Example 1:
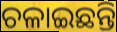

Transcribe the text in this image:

ଚଳାଇଛନ୍ତି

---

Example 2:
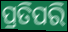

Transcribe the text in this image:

ପ୍ରତିପରି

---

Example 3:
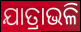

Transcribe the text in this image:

ଯାତ୍ରାଭଳି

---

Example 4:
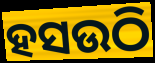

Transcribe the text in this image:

ହସଉଠି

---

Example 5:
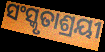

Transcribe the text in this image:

ସଂସ୍କୃତାଶ୍ରୟୀ